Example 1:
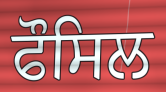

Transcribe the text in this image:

ਫੌਸਿਲ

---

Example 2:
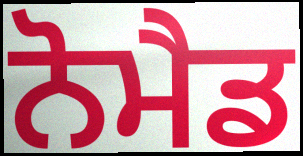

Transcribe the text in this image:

ਨੋਮੈਡ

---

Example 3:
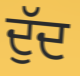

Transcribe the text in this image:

ਦੁੱਦ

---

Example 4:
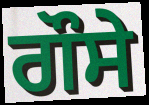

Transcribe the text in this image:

ਗੌਸੇ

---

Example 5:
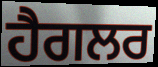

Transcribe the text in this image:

ਹੈਗਲਰ